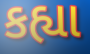
કહ્યા